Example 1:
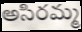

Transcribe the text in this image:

అసిరమ్మ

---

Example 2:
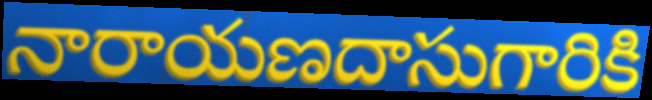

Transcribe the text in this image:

నారాయణదాసుగారికి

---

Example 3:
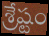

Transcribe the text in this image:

శ్రేష్టం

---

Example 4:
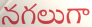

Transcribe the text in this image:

నగలుగా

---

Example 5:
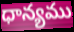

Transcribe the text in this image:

ధాన్యము